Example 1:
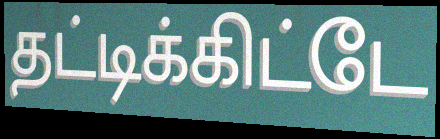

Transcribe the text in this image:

தட்டிக்கிட்டே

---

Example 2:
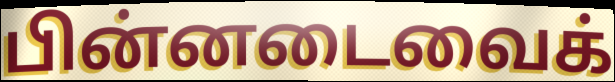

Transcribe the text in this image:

பின்னடைவைக்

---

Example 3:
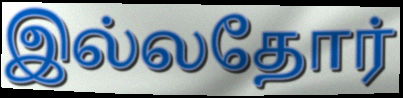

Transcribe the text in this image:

இல்லதோர்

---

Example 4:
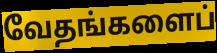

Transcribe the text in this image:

வேதங்களைப்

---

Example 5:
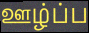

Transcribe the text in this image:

ஊழ்ப்ப